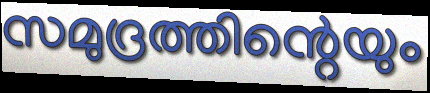
സമുദ്രത്തിന്റെയും